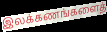
இலக்கணங்களைத்